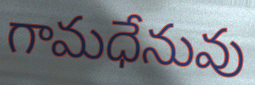
గామధేనువు